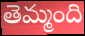
తెమ్మంది